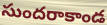
సుందరాకాండ